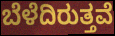
ಬೆಳೆದಿರುತ್ತವೆ